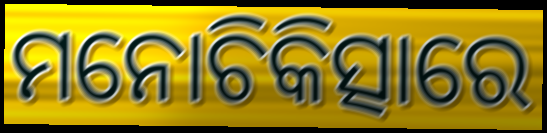
ମନୋଚିକିତ୍ସାରେ